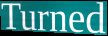
Turned